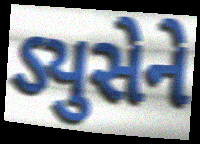
ડ્યુસેને